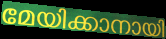
മേയിക്കാനായി